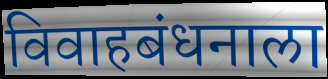
विवाहबंधनाला